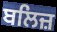
ਬਲਿਜ਼